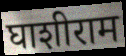
घाशीराम